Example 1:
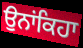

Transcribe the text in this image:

ਉਨਾਂਕਿਹਾ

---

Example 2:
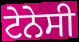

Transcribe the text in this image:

ਟੇਨੇਸੀ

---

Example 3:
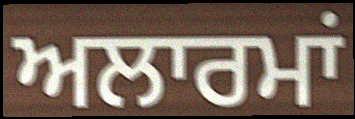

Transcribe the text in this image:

ਅਲਾਰਮਾਂ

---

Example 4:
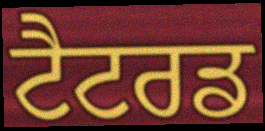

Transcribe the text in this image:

ਟੈਟਰਡ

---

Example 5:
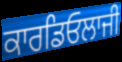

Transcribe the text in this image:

ਕਾਰਡਿਓਲਾਜੀ